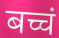
बच्चं